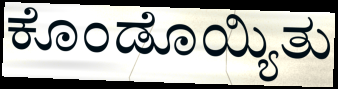
ಕೊಂಡೊಯ್ಯಿತು